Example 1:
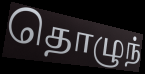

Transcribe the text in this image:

தொழுந்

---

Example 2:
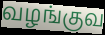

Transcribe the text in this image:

வழங்குவ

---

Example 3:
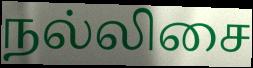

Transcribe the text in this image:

நல்லிசை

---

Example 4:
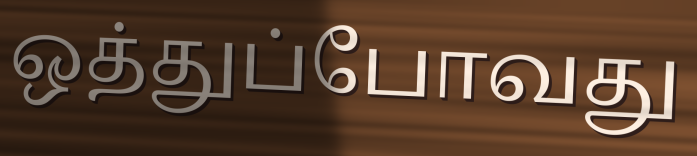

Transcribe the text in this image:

ஒத்துப்போவது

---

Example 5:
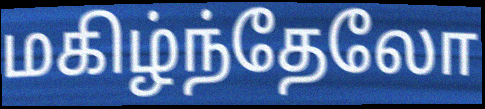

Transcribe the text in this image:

மகிழ்ந்தேலோ